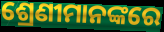
ଶ୍ରେଣୀମାନଙ୍କରେ